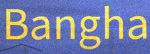
Bangha